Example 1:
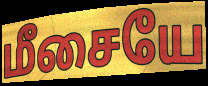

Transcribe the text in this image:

மீசையே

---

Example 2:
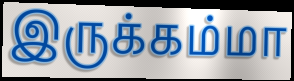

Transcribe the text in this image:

இருக்கம்மா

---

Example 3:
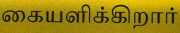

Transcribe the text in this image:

கையளிக்கிறார்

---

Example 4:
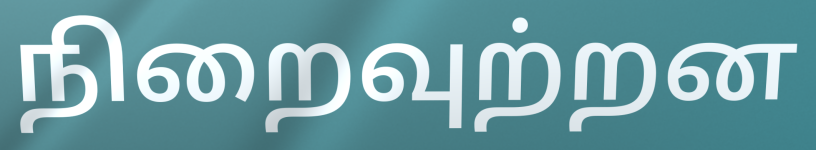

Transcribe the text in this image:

நிறைவுற்றன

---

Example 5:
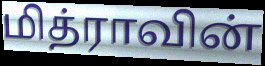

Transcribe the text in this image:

மித்ராவின்